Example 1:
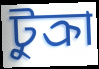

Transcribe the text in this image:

টুক্রা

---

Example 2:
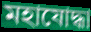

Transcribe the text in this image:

মহাযোদ্ধা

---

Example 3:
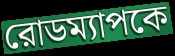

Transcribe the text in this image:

রোডম্যাপকে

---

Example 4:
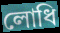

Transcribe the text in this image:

লোধি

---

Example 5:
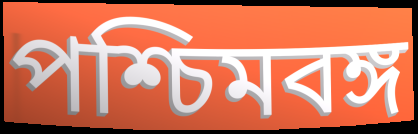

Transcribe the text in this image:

পশ্চিমবঙ্গ